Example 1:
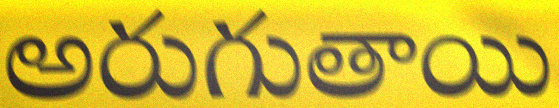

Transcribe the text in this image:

అరుగుతాయి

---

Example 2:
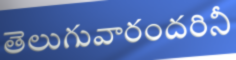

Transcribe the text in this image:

తెలుగువారందరినీ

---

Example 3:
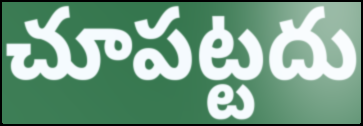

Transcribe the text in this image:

చూపట్టదు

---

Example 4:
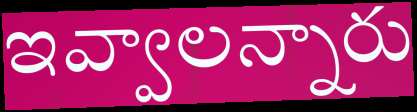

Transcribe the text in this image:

ఇవ్వాలన్నారు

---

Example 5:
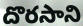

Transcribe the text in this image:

దొరసాని